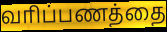
வரிப்பணத்தை